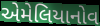
એમેલિયાનોવ